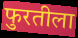
फुरतीला